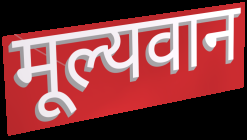
मूल्यवान